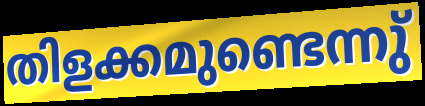
തിളക്കമുണ്ടെന്നു്